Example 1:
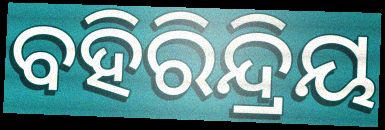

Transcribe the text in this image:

ବହିରିନ୍ଦ୍ରିୟ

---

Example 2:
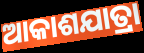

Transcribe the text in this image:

ଆକାଶଯାତ୍ରା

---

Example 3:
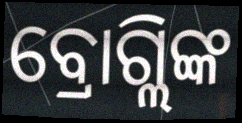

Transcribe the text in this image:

ବ୍ରୋଗ୍ଲିଙ୍କ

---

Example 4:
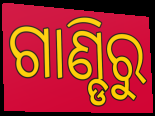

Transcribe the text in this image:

ଗାଣ୍ଡିରୁ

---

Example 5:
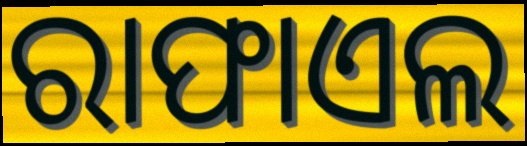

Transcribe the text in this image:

ରାଫାଏଲ